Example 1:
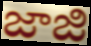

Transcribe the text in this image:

జాజి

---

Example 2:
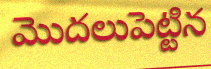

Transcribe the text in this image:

మొదలుపెట్టిన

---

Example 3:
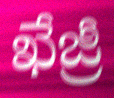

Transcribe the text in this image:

ఖేజ్రీ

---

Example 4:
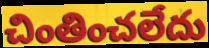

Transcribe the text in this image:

చింతించలేదు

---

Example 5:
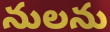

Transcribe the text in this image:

నులను